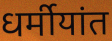
धर्मीयांत